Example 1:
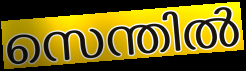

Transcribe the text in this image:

സെന്തിൽ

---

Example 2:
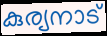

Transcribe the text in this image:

കുര്യനാട്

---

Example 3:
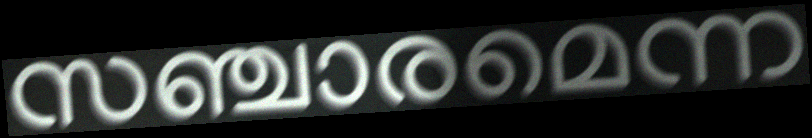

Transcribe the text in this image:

സഞ്ചാരമെന്ന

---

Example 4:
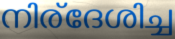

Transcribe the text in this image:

നിര്ദേശിച്ച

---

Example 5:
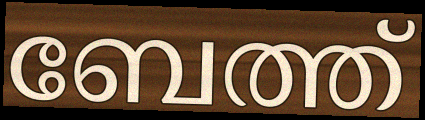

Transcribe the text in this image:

ബേത്ത്